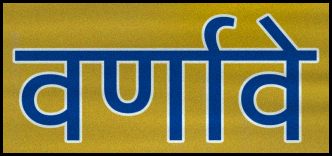
वर्णावे